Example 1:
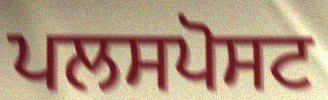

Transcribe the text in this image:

ਪਲਸਪੋਸਟ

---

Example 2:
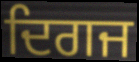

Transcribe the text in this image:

ਦਿਗਜ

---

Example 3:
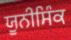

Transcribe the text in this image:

ਯੂਨੀਸਿੰਕ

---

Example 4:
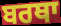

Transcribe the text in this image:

ਬਰਥਾ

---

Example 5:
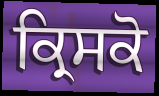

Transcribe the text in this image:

ਕ੍ਰਿਸਕੋ